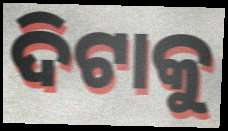
ଦିଟାକୁ